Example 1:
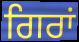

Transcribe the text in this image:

ਗਿਰਾਂ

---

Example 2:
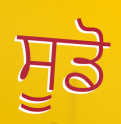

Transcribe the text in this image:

ਸੂਡੋ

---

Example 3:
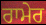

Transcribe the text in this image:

ਰਾਮੇਰ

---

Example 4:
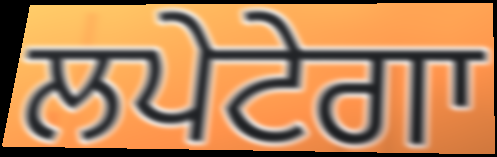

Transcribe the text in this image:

ਲਪੇਟੇਗਾ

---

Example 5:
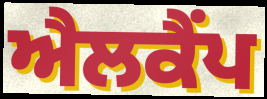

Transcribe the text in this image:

ਐਲਕੈਂਪ